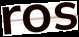
ros